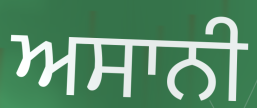
ਅਸਾਨੀ